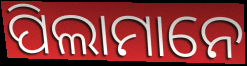
ପିଲାମାନେ